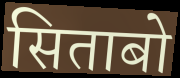
सिताबो